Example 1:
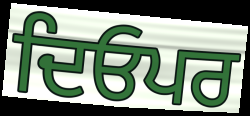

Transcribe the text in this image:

ਦਿਓਪਰ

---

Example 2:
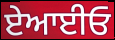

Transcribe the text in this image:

ਏਆਈਓ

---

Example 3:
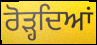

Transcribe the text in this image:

ਰੋੜ੍ਹਦਿਆਂ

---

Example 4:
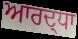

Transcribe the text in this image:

ਆਰਦ੍ਧਾ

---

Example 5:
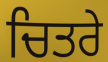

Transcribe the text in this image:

ਚਿਤਰੇ